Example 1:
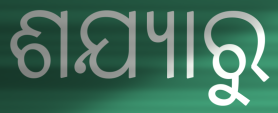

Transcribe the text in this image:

ଶଯ୍ୟାରୁ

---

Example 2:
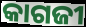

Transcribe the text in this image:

କାଗଜୀ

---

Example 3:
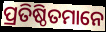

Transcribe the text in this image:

ପ୍ରତିଷ୍ଠିତମାନେ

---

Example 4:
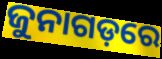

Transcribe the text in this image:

ଜୁନାଗଡ଼ରେ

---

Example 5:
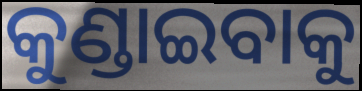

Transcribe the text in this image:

କୁଣ୍ଡାଇବାକୁ